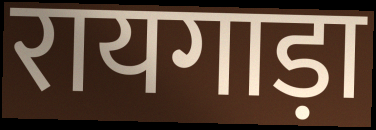
रायगाड़ा